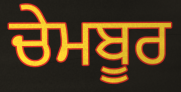
ਚੇਮਬੂਰ